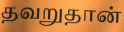
தவறுதான்